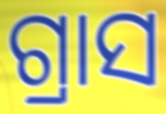
ଗ୍ରାସ